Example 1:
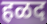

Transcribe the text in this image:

हळद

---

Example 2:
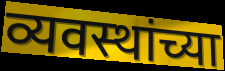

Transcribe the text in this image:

व्यवस्थांच्या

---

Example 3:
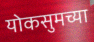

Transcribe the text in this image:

योकसुमच्या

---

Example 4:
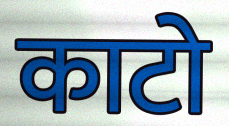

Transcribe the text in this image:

काटो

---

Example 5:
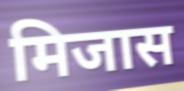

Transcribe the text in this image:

मिजास